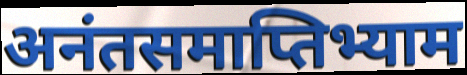
अनंतसमाप्तिभ्याम